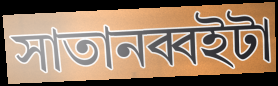
সাতানব্বইটা